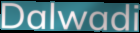
Dalwadi